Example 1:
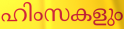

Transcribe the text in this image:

ഹിംസകളും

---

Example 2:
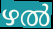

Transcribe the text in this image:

ഴൽ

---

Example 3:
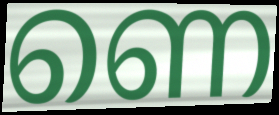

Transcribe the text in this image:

ണെ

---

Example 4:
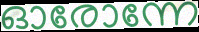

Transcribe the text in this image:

ഓരോന്നേ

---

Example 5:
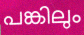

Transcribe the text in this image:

പങ്കിലും